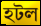
হটল